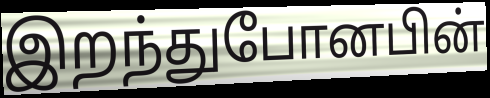
இறந்துபோனபின்